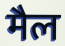
मैल